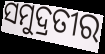
ସମୁଦ୍ରତୀର